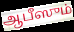
ஆபீஸும்